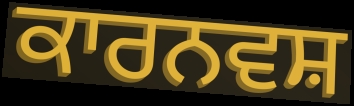
ਕਾਰਨਵਸ਼